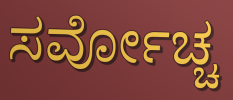
ಸರ್ವೋಚ್ಚ